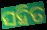
ସହିତ